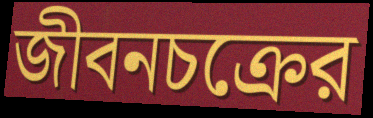
জীবনচক্রের